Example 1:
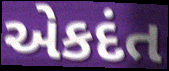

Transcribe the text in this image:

એકદંત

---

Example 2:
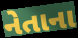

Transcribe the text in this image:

નેતાના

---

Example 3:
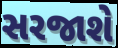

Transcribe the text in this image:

સરજાશે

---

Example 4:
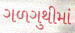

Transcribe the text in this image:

ગળગુથીમાં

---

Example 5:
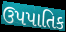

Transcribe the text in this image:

ઉપપાતિક